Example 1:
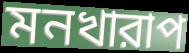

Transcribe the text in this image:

মনখারাপ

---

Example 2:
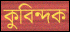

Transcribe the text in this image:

কুবিন্দক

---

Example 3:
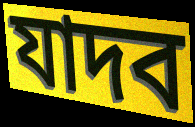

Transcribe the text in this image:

যাদব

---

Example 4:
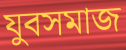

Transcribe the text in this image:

যুবসমাজ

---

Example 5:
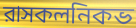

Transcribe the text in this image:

রাসকলনিকভ